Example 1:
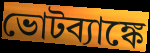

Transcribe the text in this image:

ভোটব্যাঙ্কে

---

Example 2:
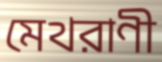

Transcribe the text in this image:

মেথরাণী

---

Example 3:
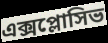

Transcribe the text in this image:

এক্সপ্লোসিভ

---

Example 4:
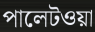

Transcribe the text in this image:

পালেটওয়া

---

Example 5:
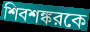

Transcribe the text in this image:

শিবশঙ্করকে